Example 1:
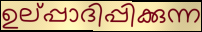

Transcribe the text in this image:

ഉല്പ്പാദിപ്പിക്കുന്ന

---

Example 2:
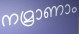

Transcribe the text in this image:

നമ്രാണാം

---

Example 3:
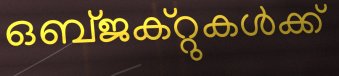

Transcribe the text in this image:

ഒബ്ജക്റ്റുകൾക്ക്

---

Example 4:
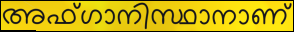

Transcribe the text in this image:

അഫ്ഗാനിസ്ഥാനാണ്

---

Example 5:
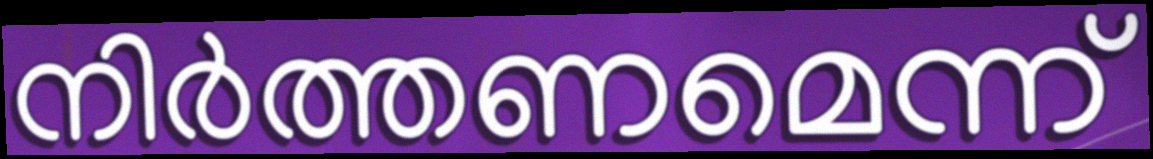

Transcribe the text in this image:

നിർത്തണമെന്ന്